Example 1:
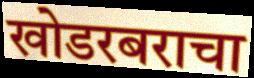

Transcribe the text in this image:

खोडरबराचा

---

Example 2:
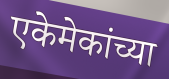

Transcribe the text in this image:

एकेमेकांच्या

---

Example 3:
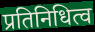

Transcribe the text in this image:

प्रतिनिधित्व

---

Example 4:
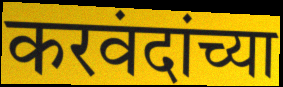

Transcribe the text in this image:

करवंदांच्या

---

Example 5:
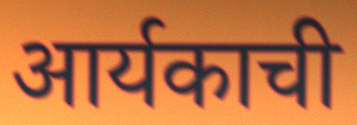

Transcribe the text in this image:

आर्यकाची